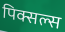
पिक्सल्स